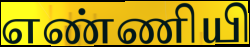
எண்ணியி